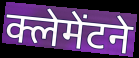
क्लेमेंटने